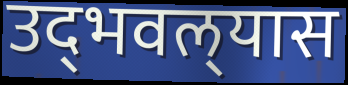
उद्भवल्यास